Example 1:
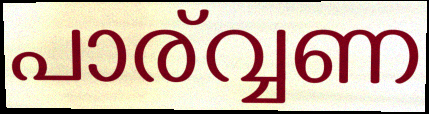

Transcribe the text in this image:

പാര്വ്വണ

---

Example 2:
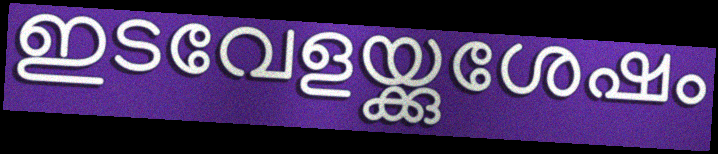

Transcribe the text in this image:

ഇടവേളയ്ക്കുശേഷം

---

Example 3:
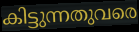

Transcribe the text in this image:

കിട്ടുന്നതുവരെ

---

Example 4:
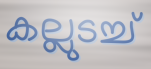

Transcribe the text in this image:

കല്ലുടച്ച്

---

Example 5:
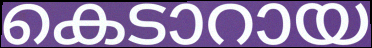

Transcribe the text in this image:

കെടാറായ